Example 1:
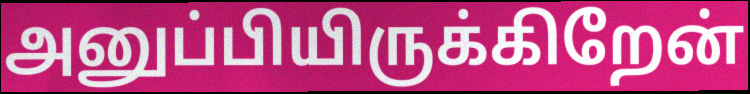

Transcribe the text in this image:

அனுப்பியிருக்கிறேன்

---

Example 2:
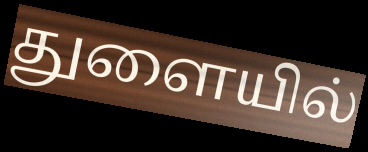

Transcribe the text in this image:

துளையில்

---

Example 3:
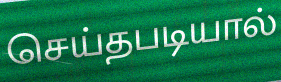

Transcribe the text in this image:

செய்தபடியால்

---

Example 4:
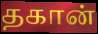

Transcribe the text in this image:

தகான்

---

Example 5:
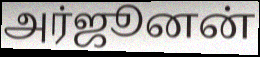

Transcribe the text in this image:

அர்ஜூனன்